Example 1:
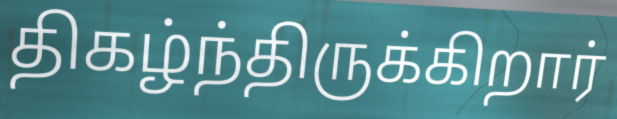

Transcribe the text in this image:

திகழ்ந்திருக்கிறார்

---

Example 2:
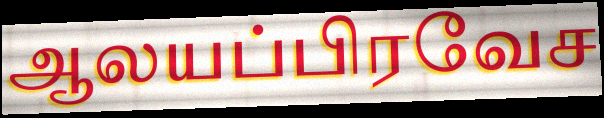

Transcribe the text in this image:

ஆலயப்பிரவேச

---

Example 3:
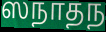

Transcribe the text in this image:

ஸநாதந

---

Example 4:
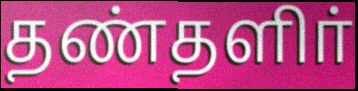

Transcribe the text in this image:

தண்தளிர்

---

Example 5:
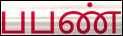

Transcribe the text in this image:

பபண்